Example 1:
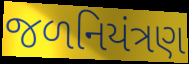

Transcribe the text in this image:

જળનિયંત્રણ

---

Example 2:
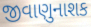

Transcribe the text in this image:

જીવાણુનાશક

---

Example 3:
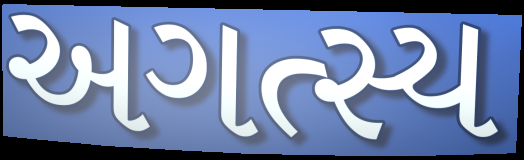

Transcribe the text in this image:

અગત્સ્ય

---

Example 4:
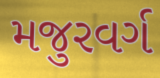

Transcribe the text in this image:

મજુરવર્ગ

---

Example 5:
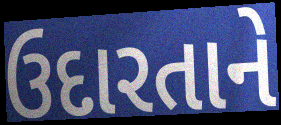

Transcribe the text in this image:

ઉદારતાને